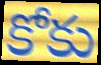
కోకు